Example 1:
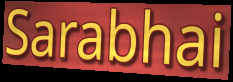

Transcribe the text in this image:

Sarabhai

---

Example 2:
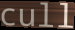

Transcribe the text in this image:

cull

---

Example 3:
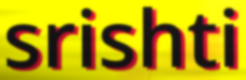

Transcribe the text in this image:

srishti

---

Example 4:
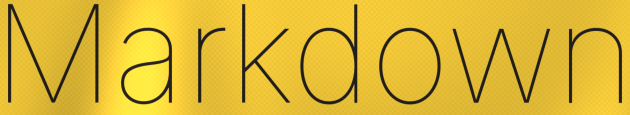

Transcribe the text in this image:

Markdown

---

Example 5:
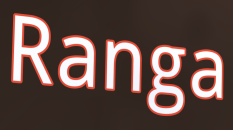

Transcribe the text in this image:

Ranga